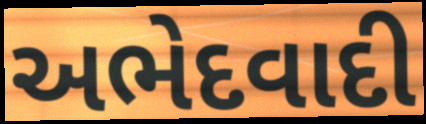
અભેદવાદી